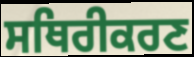
ਸਥਿਰੀਕਰਣ